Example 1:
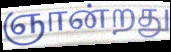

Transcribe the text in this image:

ஞான்றது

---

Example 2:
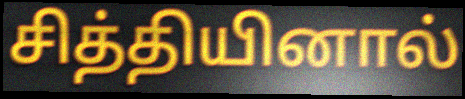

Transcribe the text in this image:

சித்தியினால்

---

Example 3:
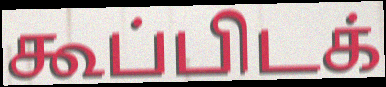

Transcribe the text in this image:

கூப்பிடக்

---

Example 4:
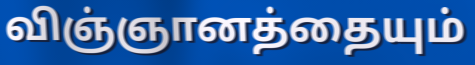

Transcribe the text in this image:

விஞ்ஞானத்தையும்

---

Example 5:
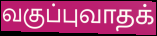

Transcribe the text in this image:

வகுப்புவாதக்